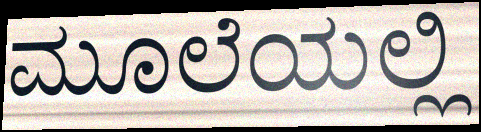
ಮೂಲೆಯಲ್ಲಿ